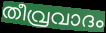
തീവ്രവാദം